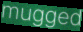
mugged